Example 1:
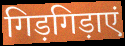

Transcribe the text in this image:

गिड़गिड़ाएं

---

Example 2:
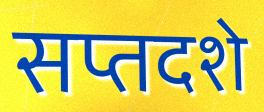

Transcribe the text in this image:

सप्तदशे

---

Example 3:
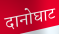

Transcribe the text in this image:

दानोघाट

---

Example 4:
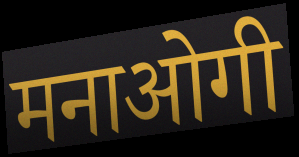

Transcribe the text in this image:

मनाओगी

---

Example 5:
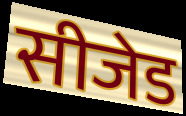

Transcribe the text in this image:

सीजेड